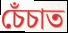
চেঁচাত